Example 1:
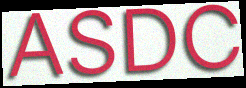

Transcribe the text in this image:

ASDC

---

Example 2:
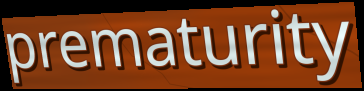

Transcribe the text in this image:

prematurity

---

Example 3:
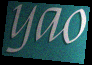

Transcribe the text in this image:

yao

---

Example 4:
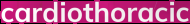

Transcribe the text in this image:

cardiothoracic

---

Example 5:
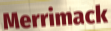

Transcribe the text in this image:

Merrimack